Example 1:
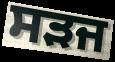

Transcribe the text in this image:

ਸੜਜ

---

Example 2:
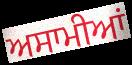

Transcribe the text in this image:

ਅਸਾਮੀਆਂ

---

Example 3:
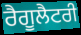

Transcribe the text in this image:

ਰੈਗੂਲੈਟਰੀ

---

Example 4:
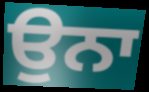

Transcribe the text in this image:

ਉਨਾ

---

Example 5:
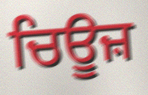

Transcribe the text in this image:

ਚਿਊਜ਼